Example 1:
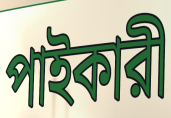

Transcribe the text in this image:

পাইকারী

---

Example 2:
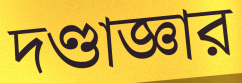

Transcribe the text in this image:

দণ্ডাজ্ঞার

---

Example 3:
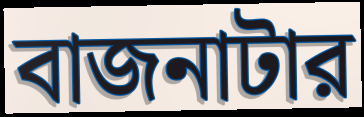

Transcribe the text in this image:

বাজনাটার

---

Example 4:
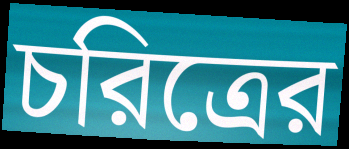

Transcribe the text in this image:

চরিত্রের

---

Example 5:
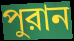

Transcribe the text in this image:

পুরান